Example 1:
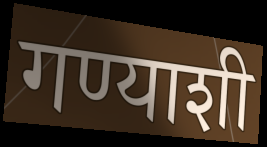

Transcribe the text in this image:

गण्याशी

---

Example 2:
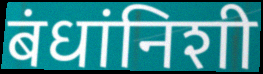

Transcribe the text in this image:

बंधांनिशी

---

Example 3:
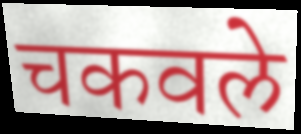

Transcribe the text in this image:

चकवले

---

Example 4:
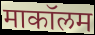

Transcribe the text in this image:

माकॉलम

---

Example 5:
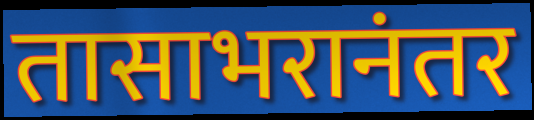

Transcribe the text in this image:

तासाभरानंतर